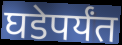
घडेपर्यंत